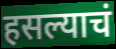
हसल्याचं